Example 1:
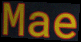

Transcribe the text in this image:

Mae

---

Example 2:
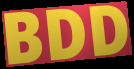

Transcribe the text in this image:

BDD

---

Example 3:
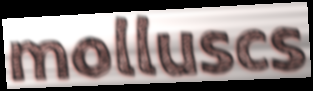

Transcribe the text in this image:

molluscs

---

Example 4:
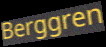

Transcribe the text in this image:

Berggren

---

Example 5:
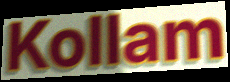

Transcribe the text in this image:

Kollam